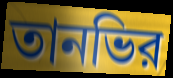
তানভির